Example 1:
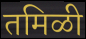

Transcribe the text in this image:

तमिळी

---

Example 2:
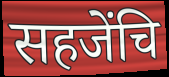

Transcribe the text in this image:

सहजेंचि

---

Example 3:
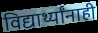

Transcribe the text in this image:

विद्यार्थ्यांनाही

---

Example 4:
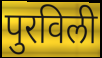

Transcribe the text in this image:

पुरविली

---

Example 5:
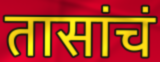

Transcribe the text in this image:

तासांचं